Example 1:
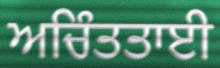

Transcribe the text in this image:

ਅਚਿੰਤਤਾਈ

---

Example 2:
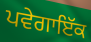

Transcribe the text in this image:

ਪਵੇਗਾਇੱਕ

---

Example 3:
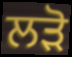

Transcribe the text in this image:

ਲੜੋ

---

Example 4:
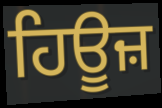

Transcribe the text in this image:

ਹਿਊਜ਼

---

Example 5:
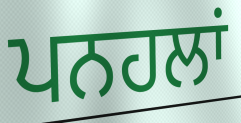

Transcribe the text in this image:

ਪਨਹਲਾਂ